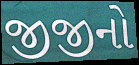
જીજીનો